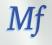
Mf